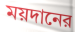
ময়দানের